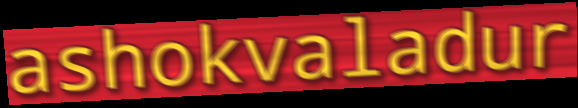
ashokvaladur